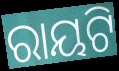
ରାୟଟି